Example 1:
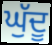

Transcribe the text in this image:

ਘੁੱਦੂ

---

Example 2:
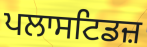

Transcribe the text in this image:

ਪਲਾਸਟਿਡਜ਼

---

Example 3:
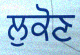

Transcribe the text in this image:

ਲੁਕੋਣ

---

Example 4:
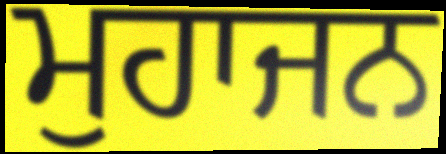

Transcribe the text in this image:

ਮੁਹਾਜਨ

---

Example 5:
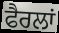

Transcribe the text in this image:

ਫੈਰਲਾਂ